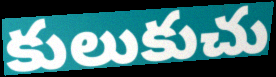
కులుకుచు